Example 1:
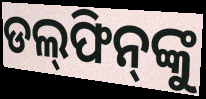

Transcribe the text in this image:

ଡଲ୍‌ଫିନ୍‌ଙ୍କୁ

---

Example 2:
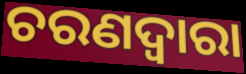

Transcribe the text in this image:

ଚରଣଦ୍ୱାରା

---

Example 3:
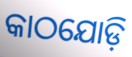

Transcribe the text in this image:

କାଠଯୋଡ଼ି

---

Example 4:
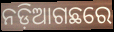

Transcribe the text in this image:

ନଡ଼ିଆଗଛରେ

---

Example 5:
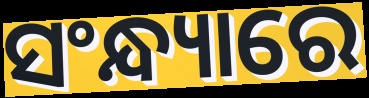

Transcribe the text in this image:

ସଂନ୍ଧ୍ୟାରେ